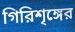
গিরিশৃঙ্গের